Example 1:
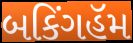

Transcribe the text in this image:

બકિંગહૅમ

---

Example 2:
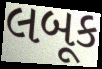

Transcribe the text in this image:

લબૂક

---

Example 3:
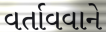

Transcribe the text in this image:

વર્તાવવાને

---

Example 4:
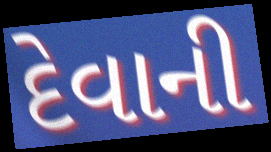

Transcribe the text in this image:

દેવાની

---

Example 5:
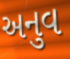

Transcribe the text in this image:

અનુવ